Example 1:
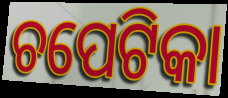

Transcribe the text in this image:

ଚପେଟିକା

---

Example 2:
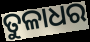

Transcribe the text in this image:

ତୁଳାଧର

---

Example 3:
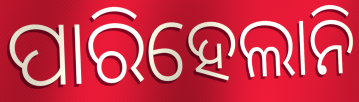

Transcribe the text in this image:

ପାରିହେଲାନି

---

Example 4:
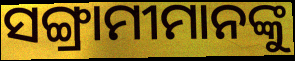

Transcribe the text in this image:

ସଙ୍ଗ୍ରାମୀମାନଙ୍କୁ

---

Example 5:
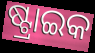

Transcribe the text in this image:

ଷ୍ଟ୍ରାଇକ